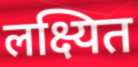
लक्ष्यित